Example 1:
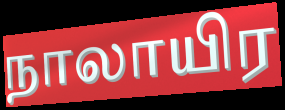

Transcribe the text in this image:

நாலாயிர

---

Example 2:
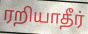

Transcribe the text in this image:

ரறியாதீர்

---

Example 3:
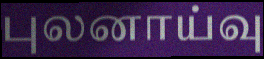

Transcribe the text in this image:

புலனாய்வு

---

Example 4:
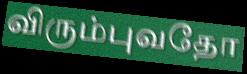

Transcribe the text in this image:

விரும்புவதோ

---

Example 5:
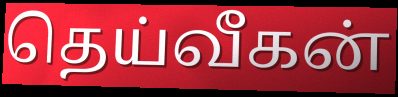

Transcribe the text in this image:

தெய்வீகன்